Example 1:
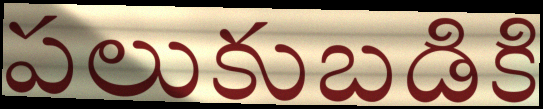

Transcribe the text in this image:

పలుకుబడికి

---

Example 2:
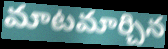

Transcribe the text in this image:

మాటమార్చిన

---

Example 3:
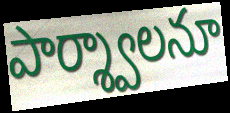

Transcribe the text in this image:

పార్శ్వాలనూ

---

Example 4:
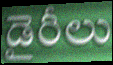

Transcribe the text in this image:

డైరీలు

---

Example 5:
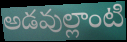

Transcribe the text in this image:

అడవుల్లాంటి